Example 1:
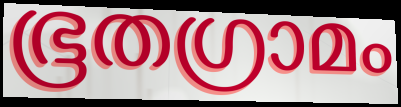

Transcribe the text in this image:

ഭൂതഗ്രാമം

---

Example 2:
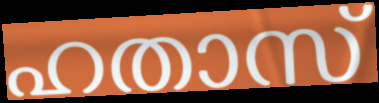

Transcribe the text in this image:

ഹതാസ്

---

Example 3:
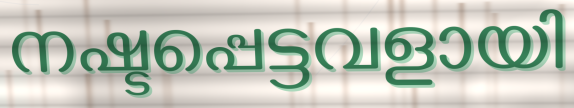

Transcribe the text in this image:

നഷ്ടപ്പെട്ടവളായി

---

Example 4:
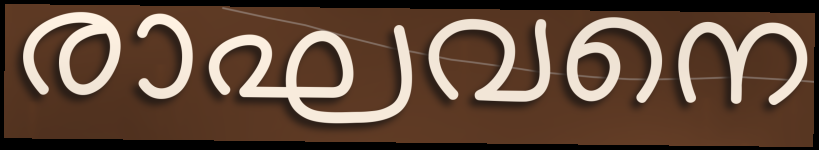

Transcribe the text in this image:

രാഘവനെ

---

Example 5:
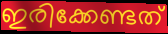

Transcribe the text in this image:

ഇരിക്കേണ്ടത്